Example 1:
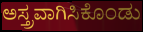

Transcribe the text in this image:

ಅಸ್ತ್ರವಾಗಿಸಿಕೊಂಡು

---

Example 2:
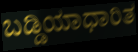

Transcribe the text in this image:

ಬಡ್ಡಿಯಾಧಾರಿತ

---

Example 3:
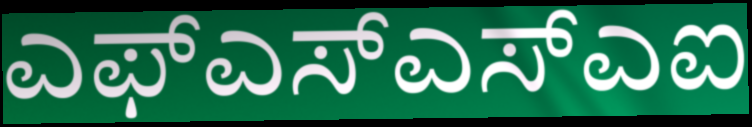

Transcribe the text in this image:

ಎಫ್ಎಸ್ಎಸ್ಎಐ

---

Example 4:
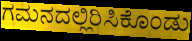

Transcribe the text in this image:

ಗಮನದಲ್ಲಿರಿಸಿಕೊಂಡು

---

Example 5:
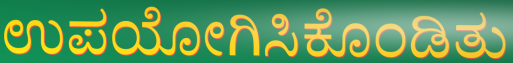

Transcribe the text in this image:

ಉಪಯೋಗಿಸಿಕೊಂಡಿತು